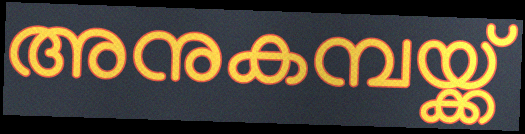
അനുകമ്പയ്ക്ക്